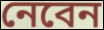
নেবেন